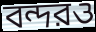
বন্দরও